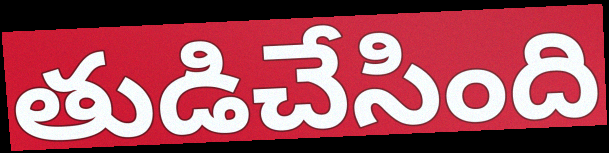
తుడిచేసింది